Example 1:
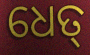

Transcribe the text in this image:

ଧେତ୍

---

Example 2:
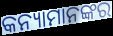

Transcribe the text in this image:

କନ୍ୟାମାନଙ୍କର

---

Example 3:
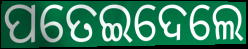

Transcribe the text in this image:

ପତେଇଦେଲେ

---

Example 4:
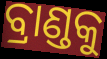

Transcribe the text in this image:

ବ୍ରାଣ୍ଡକୁ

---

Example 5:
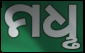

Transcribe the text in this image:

ମଧୢ